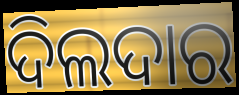
ଦିଲଦାର